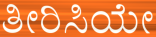
ತೀರಿಸಿಯೇ